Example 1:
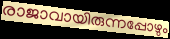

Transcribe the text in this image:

രാജാവായിരുന്നപ്പോഴും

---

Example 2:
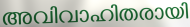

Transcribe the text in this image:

അവിവാഹിതരായി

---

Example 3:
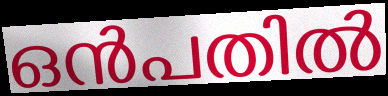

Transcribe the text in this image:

ഒൻപതിൽ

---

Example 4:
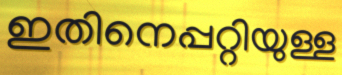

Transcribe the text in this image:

ഇതിനെപ്പറ്റിയുള്ള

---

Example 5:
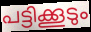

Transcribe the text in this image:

പട്ടിക്കൂടും